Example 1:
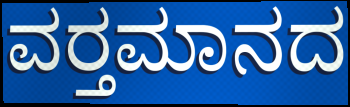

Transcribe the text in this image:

ವರ‍್ತಮಾನದ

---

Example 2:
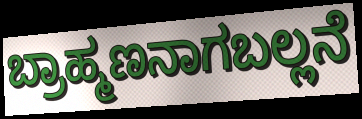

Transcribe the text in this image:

ಬ್ರಾಹ್ಮಣನಾಗಬಲ್ಲನೆ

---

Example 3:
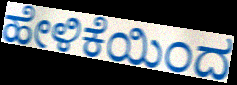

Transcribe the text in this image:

ಹೇಳಿಕೆಯಿಂದ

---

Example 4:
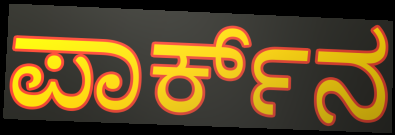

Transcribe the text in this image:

ಪಾರ್ಕ್‌ನ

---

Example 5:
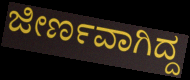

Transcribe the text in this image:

ಜೀರ್ಣವಾಗಿದ್ದ